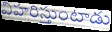
విహరిస్తుంటాడు